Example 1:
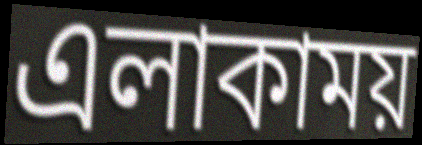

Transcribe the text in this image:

এলাকাময়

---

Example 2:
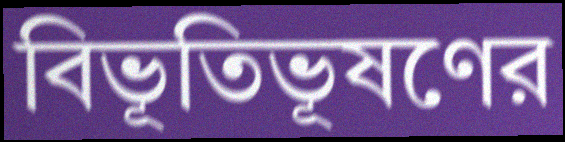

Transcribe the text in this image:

বিভূতিভূষণের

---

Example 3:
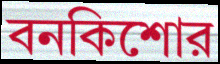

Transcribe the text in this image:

বনকিশোর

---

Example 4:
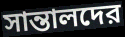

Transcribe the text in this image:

সান্তালদের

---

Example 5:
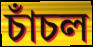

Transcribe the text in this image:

চাঁচল